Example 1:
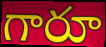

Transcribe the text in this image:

గారూ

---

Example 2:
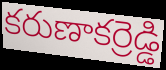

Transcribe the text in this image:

కరుణాకర్రెడ్డి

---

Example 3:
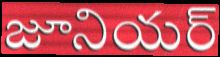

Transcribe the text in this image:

జూనియర్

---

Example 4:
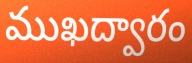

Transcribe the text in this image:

ముఖద్వారం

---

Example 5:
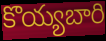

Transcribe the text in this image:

కొయ్యబారి